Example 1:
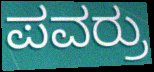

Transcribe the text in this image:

ಪವರ್ರು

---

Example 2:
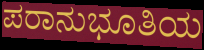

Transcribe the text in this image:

ಪರಾನುಭೂತಿಯ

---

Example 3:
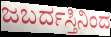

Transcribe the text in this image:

ಜಬರ್ದಸ್ತಿನಿಂದ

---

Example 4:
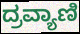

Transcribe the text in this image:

ದ್ರವ್ಯಾಣಿ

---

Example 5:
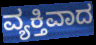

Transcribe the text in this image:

ವ್ಯಕ್ತಿವಾದ